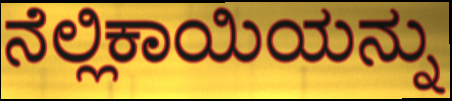
ನೆಲ್ಲಿಕಾಯಿಯನ್ನು